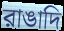
রাঙাদি